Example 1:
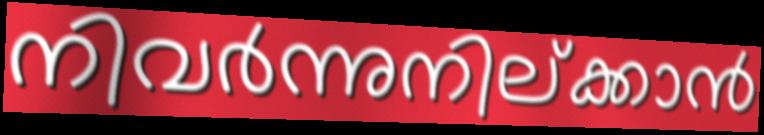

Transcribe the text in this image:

നിവർന്നുനില്ക്കാൻ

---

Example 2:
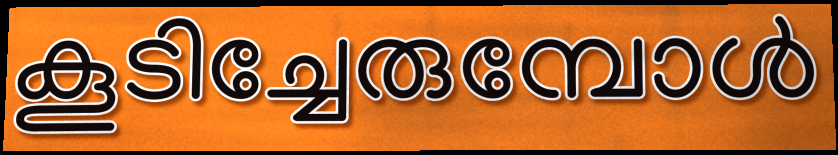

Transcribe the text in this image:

കൂടിച്ചേരുമ്പോൾ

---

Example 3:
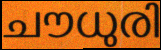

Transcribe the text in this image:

ചൗധുരി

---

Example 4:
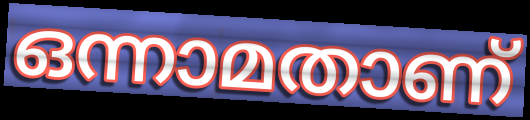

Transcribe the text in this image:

ഒന്നാമതാണ്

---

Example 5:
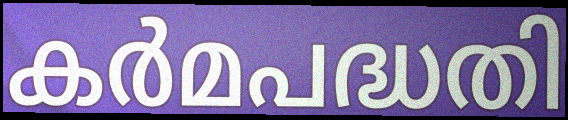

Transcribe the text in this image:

കർമപദ്ധതി